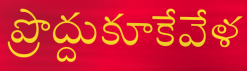
ప్రొద్దుకూకేవేళ